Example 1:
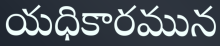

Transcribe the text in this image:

యధికారమున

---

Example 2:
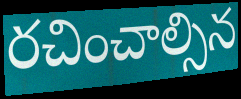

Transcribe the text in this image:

రచించాల్సిన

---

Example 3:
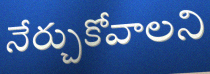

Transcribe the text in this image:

నేర్చుకోవాలని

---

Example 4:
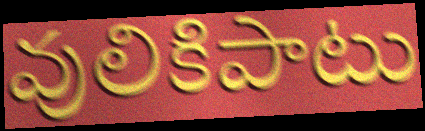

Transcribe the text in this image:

వులికిపాటు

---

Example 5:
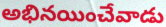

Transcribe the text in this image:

అభినయించేవాడు